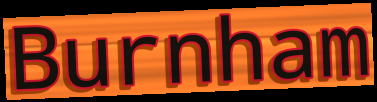
Burnham